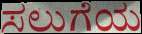
ಸಲುಗೆಯ